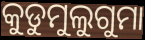
କୁଡୁମୁଲୁଗୁମା